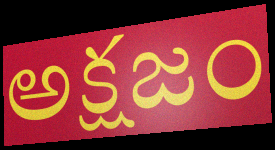
అక్షజం